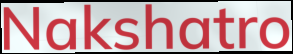
Nakshatro